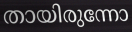
തായിരുന്നോ